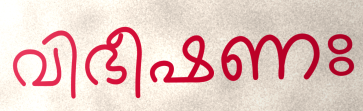
വിഭീഷണഃ